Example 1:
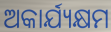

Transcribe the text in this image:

ଅକାର୍ଯ୍ୟକ୍ଷମ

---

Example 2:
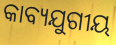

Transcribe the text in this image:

କାବ୍ୟଯୁଗୀୟ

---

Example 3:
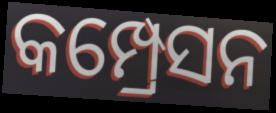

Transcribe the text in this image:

କମ୍ପ୍ରେସନ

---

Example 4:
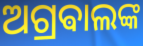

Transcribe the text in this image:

ଅଗ୍ରଵାଲଙ୍କ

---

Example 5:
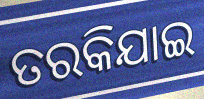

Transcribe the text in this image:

ତରକିଯାଇ